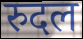
रुदल